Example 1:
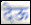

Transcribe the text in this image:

देऊ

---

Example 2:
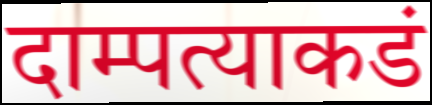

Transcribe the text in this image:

दाम्पत्याकडं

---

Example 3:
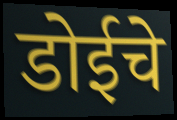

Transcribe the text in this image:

डोईचे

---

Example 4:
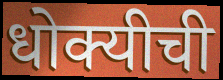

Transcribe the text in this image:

धोक्यीची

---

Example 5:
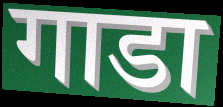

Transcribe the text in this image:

गाडा